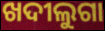
ଖଦୀଲୁଗା